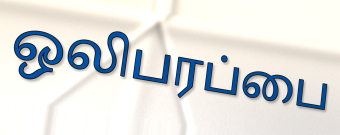
ஒலிபரப்பை